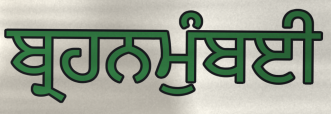
ਬ੍ਰਹਨਮੁੰਬਈ